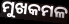
ମୁଖକମଳ